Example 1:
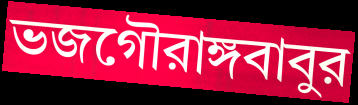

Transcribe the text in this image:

ভজগৌরাঙ্গবাবুর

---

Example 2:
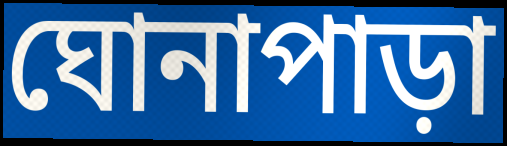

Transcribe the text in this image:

ঘোনাপাড়া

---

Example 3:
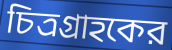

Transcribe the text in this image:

চিত্রগ্রাহকের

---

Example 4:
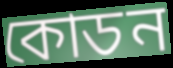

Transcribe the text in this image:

কোডন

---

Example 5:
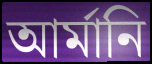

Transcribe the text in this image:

আর্মানি